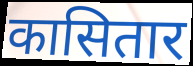
कासितार